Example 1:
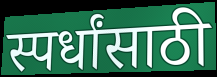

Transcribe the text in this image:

स्पर्धांसाठी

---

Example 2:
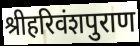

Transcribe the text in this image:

श्रीहरिवंशपुराण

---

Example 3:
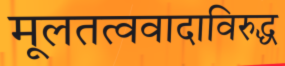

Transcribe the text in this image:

मूलतत्ववादाविरुद्ध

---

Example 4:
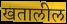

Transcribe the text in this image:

खतालील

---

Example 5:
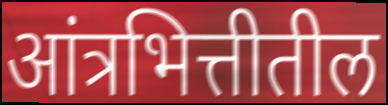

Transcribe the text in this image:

आंत्रभित्तीतील